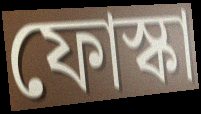
ফোস্কা